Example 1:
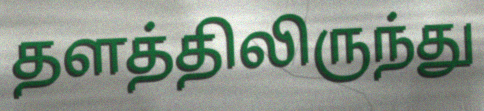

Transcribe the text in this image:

தளத்திலிருந்து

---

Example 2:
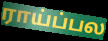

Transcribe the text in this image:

ராய்ப்பல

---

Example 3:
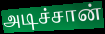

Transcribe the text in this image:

அடிச்சான்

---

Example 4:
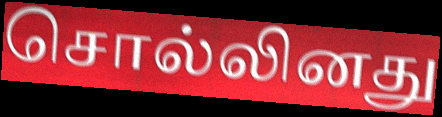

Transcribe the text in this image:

சொல்லினது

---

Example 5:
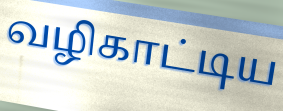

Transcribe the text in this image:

வழிகாட்டிய